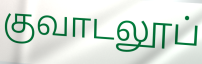
குவாடலூப்